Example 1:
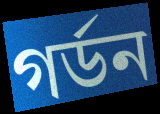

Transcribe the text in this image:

গৰ্ডন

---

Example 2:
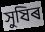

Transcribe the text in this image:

সুষিৰ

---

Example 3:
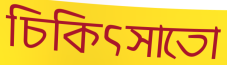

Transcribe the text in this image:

চিকিৎসাতো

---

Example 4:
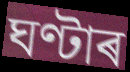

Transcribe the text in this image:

ঘণ্টাৰ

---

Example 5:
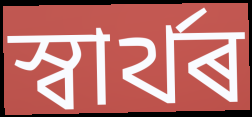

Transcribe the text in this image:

স্বাৰ্থৰ